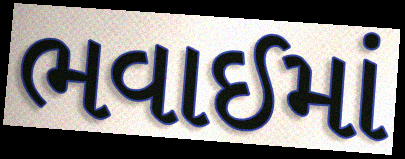
ભવાઈમાં